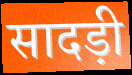
सादड़ी